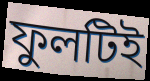
ফুলটিই